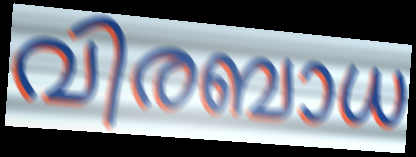
വിരബാധ